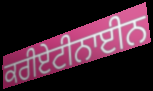
ਕਰੀਏਟੀਨਾਈਨ